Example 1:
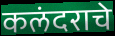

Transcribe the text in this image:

कलंदराचे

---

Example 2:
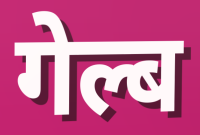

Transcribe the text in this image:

गेल्ब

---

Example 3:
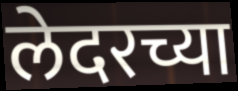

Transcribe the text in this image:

लेदरच्या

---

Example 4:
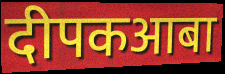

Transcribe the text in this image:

दीपकआबा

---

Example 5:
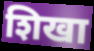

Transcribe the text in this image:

शिखा